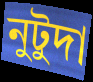
নুটুদা